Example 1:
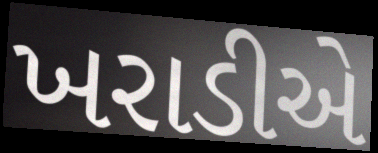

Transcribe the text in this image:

ખરાડીએ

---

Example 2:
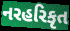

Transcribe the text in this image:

નરહરિકૃત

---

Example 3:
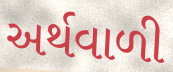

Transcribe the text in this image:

અર્થવાળી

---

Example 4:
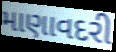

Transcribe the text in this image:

માણાવદરી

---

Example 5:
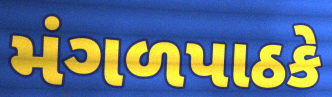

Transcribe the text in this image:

મંગળપાઠકે